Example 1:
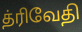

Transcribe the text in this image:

த்ரிவேதி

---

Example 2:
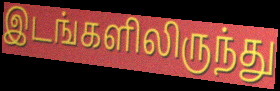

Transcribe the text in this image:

இடங்களிலிருந்து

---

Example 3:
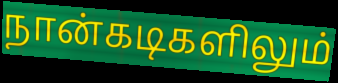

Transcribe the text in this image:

நான்கடிகளிலும்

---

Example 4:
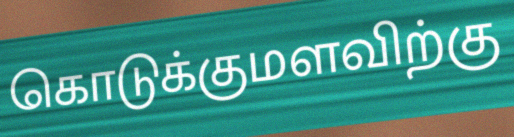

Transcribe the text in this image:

கொடுக்குமளவிற்கு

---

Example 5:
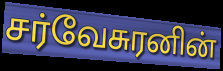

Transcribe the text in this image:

சர்வேசுரனின்